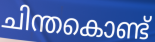
ചിന്തകൊണ്ട്